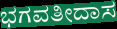
ಭಗವತೀದಾಸ